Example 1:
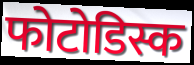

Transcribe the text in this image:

फोटोडिस्क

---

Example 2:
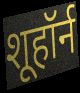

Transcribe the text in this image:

शूहॉर्न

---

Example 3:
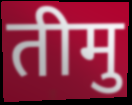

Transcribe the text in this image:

तीमु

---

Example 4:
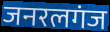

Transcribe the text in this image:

जनरलगंज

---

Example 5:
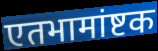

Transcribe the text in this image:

एतभामांष्टक